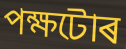
পক্ষটোৰ